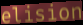
elision